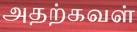
அதற்கவள்